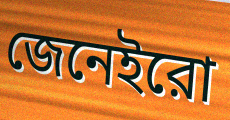
জেনেইরো